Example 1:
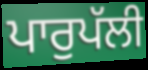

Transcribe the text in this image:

ਪਾਰੁਪੱਲੀ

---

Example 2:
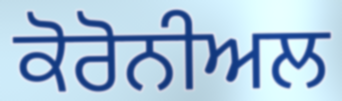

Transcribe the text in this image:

ਕੋਰੋਨੀਅਲ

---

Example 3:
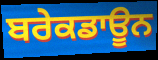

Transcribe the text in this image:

ਬਰੇਕਡਾਊਨ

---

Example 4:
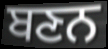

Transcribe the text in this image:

ਬਣਨ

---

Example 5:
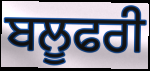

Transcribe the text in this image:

ਬਲੂਫਰੀ